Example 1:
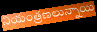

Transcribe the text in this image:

నియంత్రణలున్నాయి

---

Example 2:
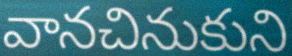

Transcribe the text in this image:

వానచినుకుని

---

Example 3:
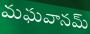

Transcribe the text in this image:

మఘవానమ్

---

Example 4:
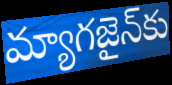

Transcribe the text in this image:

మ్యాగజైన్‌కు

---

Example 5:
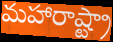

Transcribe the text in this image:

మహారాష్ట్రా